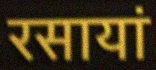
रसायां